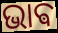
ଭାଵ